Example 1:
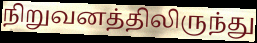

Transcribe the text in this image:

நிறுவனத்திலிருந்து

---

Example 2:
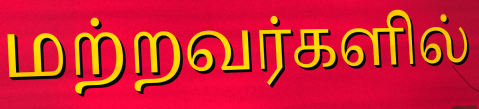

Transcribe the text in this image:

மற்றவர்களில்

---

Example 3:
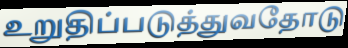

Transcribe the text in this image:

உறுதிப்படுத்துவதோடு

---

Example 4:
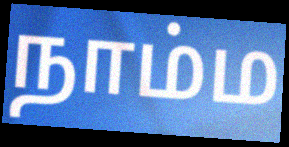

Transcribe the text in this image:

நாம்ம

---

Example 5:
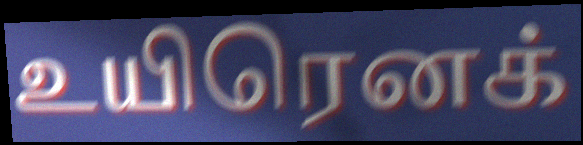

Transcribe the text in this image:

உயிரெனக்